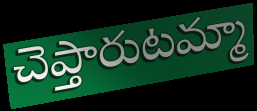
చెప్తారుటమ్మా